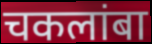
चकलांबा